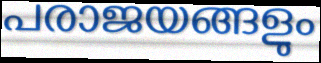
പരാജയങ്ങളും